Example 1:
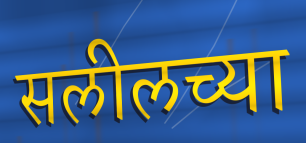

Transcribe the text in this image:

सलीलच्या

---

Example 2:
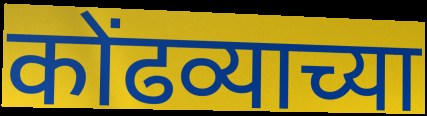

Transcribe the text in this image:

कोंढव्याच्या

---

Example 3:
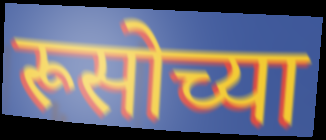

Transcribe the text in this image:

रूसोच्या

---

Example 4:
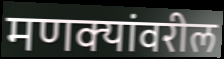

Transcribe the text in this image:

मणक्यांवरील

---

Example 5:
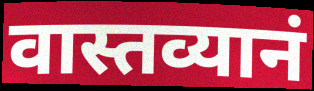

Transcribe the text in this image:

वास्तव्यानं